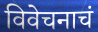
विवेचनाचं